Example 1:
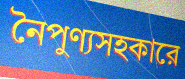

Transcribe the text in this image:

নৈপুণ্যসহকারে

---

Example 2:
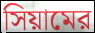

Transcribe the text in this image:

সিয়ামের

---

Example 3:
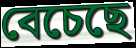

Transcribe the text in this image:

বেচেছে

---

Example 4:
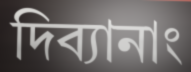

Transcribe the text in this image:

দিব্যানাং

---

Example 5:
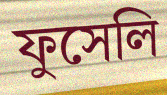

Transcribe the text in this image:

ফুসেলি